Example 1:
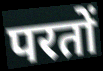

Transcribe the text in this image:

परतों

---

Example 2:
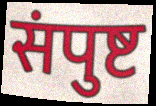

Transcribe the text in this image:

संपुष्ट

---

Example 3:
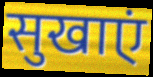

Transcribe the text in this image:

सुखाएं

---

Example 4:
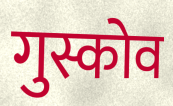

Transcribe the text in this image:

गुस्कोव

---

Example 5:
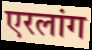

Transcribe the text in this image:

एरलांग